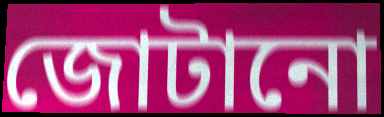
জোটানো